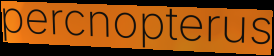
percnopterus